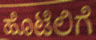
ಹೊಟೆಲಿಗೆ